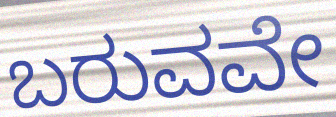
ಬರುವವೇ